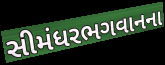
સીમંધરભગવાનના